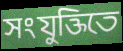
সংযুক্তিতে